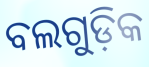
ବଲଗୁଡ଼ିକ